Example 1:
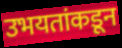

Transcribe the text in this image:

उभयतांकडून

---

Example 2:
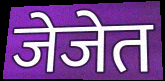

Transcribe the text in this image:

जेजेत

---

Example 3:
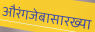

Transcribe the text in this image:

औरंगजेबासारख्या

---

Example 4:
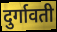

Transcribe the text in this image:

दुर्गावती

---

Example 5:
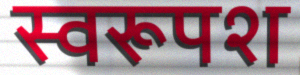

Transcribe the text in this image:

स्वरूपश